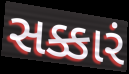
સક્કારં